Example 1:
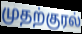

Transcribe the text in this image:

முதற்குரல்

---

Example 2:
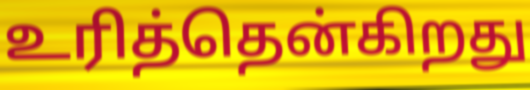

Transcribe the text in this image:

உரித்தென்கிறது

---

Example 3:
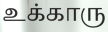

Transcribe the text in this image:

உக்காரு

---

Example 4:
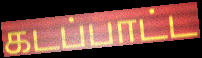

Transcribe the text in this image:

கடப்பாட்ட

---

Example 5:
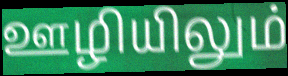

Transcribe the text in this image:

ஊழியிலும்